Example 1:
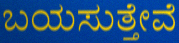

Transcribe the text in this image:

ಬಯಸುತ್ತೇವೆ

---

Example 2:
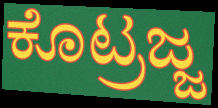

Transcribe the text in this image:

ಕೊಟ್ರಜ್ಜ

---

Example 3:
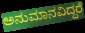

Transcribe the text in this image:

ಅನುಮಾನವಿದ್ದರೆ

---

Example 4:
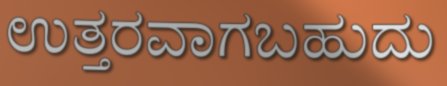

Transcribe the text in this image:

ಉತ್ತರವಾಗಬಹುದು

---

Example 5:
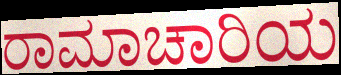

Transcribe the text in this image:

ರಾಮಾಚಾರಿಯ